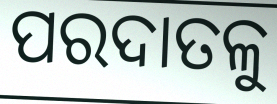
ପରଦାତଳୁ